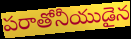
పరాతోనీయుడైన